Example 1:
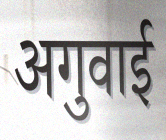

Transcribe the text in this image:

अगुवाई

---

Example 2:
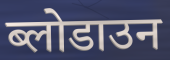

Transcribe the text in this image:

ब्लोडाउन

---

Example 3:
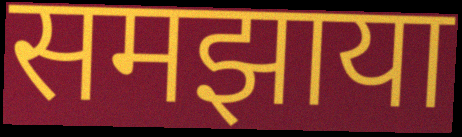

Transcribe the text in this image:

समझाया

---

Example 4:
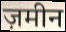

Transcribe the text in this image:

ज़मीन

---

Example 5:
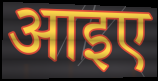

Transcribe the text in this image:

आइए